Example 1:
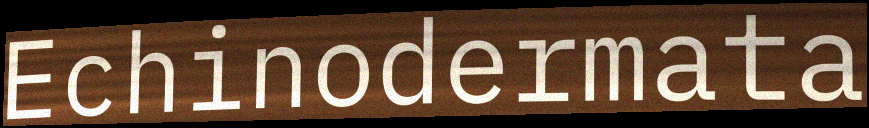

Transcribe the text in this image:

Echinodermata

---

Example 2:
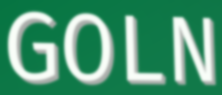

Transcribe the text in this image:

GOLN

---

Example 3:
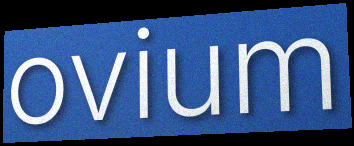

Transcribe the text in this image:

ovium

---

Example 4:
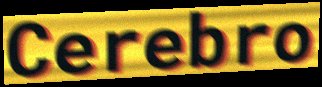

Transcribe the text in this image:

Cerebro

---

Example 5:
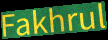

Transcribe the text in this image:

Fakhrul